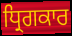
ਧ੍ਰਿਗਕਾਰ